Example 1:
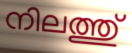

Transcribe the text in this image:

നിലത്തു്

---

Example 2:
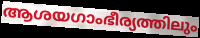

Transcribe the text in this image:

ആശയഗാംഭീര്യത്തിലും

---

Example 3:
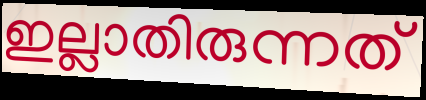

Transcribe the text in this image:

ഇല്ലാതിരുന്നത്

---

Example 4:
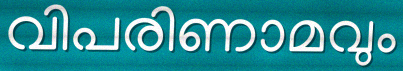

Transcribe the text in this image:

വിപരിണാമവും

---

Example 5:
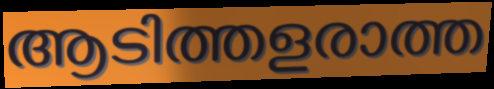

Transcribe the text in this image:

ആടിത്തളരാത്ത